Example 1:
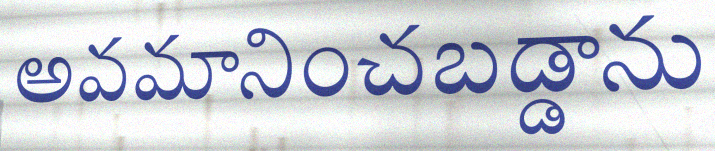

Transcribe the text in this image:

అవమానించబడ్డాను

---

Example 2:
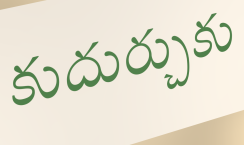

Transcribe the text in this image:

కుదుర్చుకు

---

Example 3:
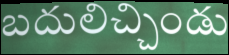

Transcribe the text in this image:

బదులిచ్చిండు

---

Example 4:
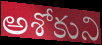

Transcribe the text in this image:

అశోకుని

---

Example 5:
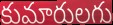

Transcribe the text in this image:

కుమారులగు